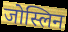
जोस्लिन